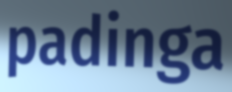
padinga